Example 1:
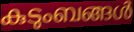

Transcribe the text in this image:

കുടുംബങ്ങൾ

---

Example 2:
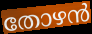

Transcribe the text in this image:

തോഴൻ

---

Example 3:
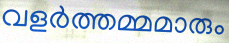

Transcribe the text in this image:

വളർത്തമ്മമാരും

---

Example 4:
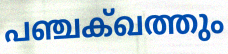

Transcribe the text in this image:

പഞ്ചക്ഖത്തും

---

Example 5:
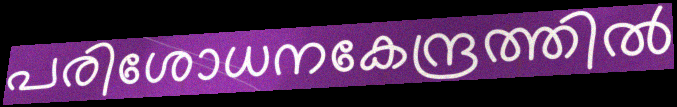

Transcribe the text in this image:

പരിശോധനകേന്ദ്രത്തിൽ